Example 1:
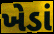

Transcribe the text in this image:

ખેડાં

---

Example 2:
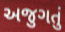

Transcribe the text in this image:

અજુગતું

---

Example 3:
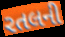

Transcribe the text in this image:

રતલની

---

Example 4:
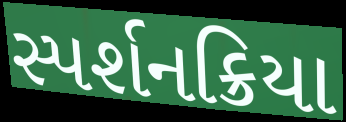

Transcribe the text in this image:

સ્પર્શનક્રિયા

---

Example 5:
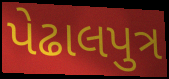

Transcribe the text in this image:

પેઢાલપુત્ર